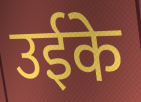
उईके